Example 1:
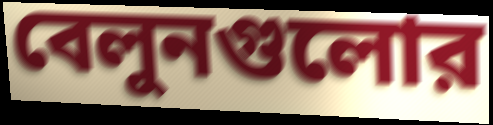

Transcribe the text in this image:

বেলুনগুলোর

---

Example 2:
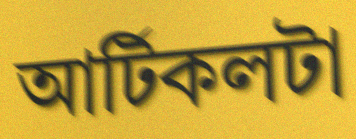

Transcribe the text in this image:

আর্টিকলটা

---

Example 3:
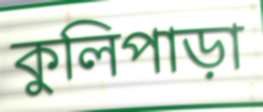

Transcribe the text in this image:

কুলিপাড়া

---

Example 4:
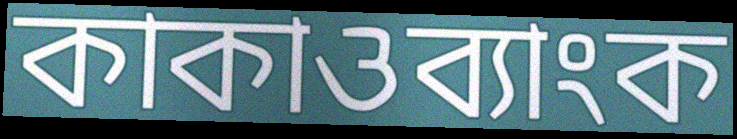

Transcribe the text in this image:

কাকাওব্যাংক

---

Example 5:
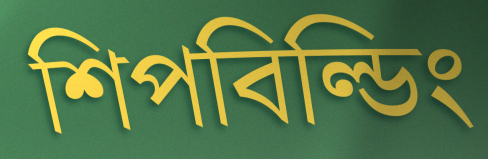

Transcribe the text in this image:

শিপবিল্ডিং